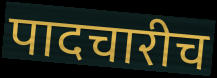
पादचारीच